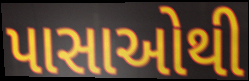
પાસાઓથી